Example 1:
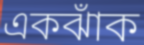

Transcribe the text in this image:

একঝাঁক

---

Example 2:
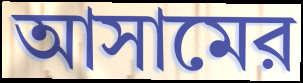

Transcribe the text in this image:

আসামের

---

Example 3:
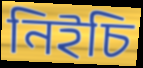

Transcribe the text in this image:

নিইচি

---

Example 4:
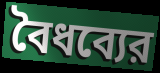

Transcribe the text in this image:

বৈধব্যের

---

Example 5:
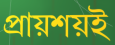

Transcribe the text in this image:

প্রায়শয়ই